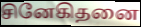
சினேகிதனை